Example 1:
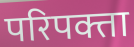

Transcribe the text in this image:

परिपक्ता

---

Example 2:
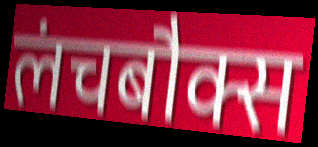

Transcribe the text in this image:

लंचबौक्स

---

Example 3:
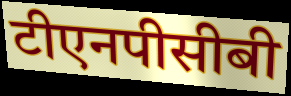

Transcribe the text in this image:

टीएनपीसीबी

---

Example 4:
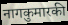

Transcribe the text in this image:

नागकुमारकी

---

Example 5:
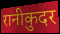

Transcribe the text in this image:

रानीकुदर